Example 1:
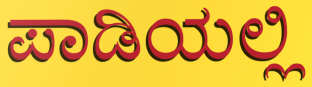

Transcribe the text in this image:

ಪಾಡಿಯಲ್ಲಿ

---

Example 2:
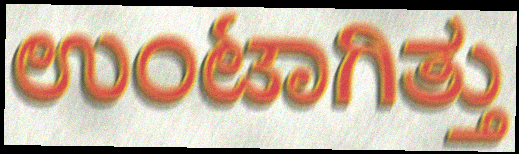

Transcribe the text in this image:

ಉಂಟಾಗಿತ್ತು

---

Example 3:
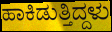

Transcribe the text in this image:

ಹಾಕಿಡುತ್ತಿದ್ದಳು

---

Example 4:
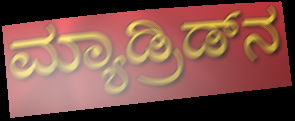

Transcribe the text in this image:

ಮ್ಯಾಡ್ರಿಡ್‌ನ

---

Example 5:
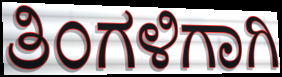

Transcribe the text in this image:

ತಿಂಗಳಿಗಾಗಿ